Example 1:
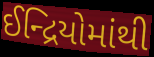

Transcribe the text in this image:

ઈન્દ્રિયોમાંથી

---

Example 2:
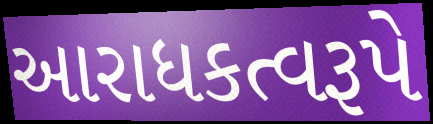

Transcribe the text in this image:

આરાધકત્વરૂપે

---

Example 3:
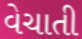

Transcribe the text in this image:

વેચાતી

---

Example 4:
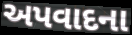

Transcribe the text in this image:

અપવાદના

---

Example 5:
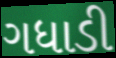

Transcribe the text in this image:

ગધાડી